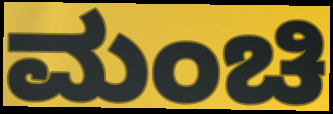
ಮಂಚಿ